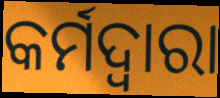
କର୍ମଦ୍ୱାରା